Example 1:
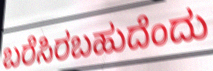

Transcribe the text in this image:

ಬರೆಸಿರಬಹುದೆಂದು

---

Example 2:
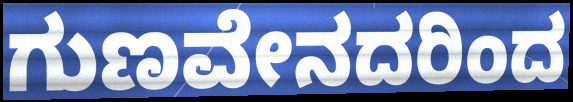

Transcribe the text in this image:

ಗುಣವೇನದರಿಂದ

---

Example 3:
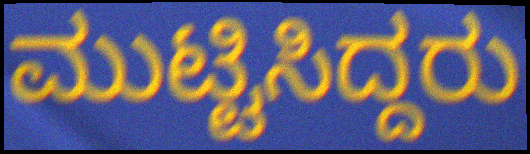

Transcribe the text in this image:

ಮುಟ್ಟಿಸಿದ್ದರು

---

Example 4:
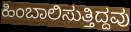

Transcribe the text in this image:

ಹಿಂಬಾಲಿಸುತ್ತಿದ್ದವು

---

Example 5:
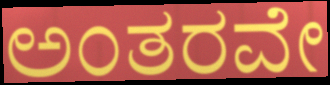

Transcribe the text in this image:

ಅಂತರವೇ